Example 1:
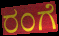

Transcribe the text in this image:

ರಂಗೆ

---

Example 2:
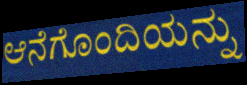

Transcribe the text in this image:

ಆನೆಗೊಂದಿಯನ್ನು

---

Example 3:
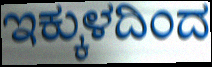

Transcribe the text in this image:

ಇಕ್ಕುಳದಿಂದ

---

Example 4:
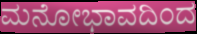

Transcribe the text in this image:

ಮನೋಭಾವದಿಂದ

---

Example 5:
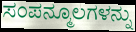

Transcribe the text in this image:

ಸಂಪನ್ಮೂಲಗಳನ್ನು